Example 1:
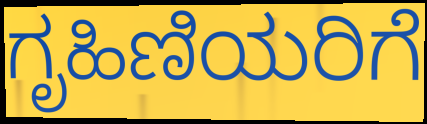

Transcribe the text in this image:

ಗೃಹಿಣಿಯರಿಗೆ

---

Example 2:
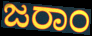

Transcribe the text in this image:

ಜರಾಂ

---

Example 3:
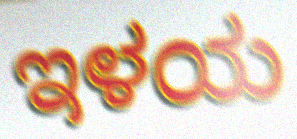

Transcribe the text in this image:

ಇಳಯ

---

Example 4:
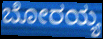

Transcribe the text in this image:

ಬೋರಯ್ಯ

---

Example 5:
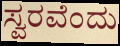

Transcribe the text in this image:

ಸ್ವರವೆಂದು